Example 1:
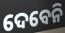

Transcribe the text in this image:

ଦେବେନି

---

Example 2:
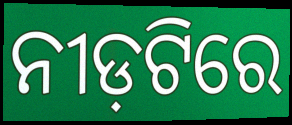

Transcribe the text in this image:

ନୀଡ଼ଟିରେ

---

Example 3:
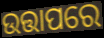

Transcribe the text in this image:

ଉତ୍ତାପରେ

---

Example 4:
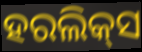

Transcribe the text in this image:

ହରଲିକ୍‍ସ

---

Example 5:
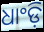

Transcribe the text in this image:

ଧାଂଡ଼ି